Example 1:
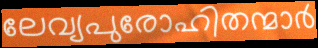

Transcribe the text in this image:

ലേവ്യപുരോഹിതന്മാർ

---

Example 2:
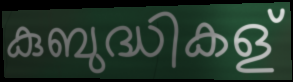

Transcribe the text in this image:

കുബുദ്ധികള്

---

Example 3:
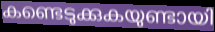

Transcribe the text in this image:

കണ്ടെടുക്കുകയുണ്ടായി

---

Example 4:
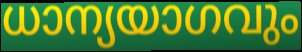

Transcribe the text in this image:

ധാന്യയാഗവും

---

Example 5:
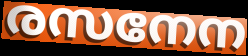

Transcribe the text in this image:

രസനേന